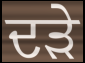
ਦੜੇ